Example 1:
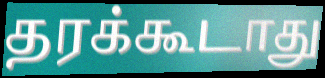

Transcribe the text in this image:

தரக்கூடாது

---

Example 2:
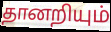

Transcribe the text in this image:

தானறியும்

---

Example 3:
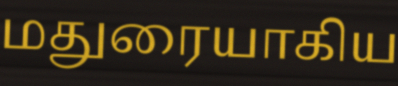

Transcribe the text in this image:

மதுரையாகிய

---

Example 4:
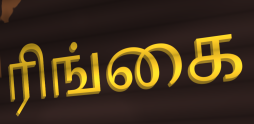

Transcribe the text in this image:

ரிங்கை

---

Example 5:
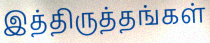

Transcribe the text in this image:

இத்திருத்தங்கள்